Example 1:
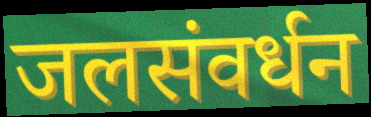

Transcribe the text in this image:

जलसंवर्धन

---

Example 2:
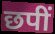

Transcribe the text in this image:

छपीं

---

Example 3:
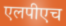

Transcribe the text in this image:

एलपीएच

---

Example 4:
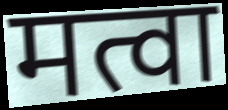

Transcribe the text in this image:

मत्वा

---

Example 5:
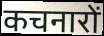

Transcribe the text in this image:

कचनारों